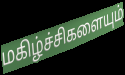
மகிழ்ச்சிகளையும்